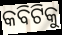
କବିଟିକୁ